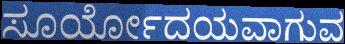
ಸೂರ್ಯೋದಯವಾಗುವ